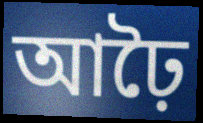
আঢ়ৈ